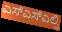
ಎಸ್ಎಸ್ಎಲ್ಸಿ